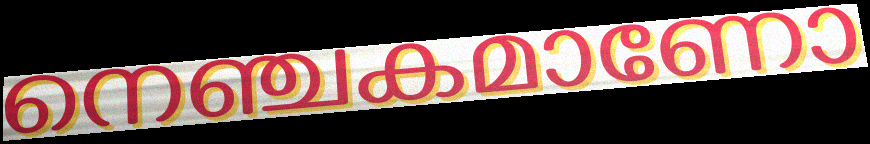
നെഞ്ചകമാണോ